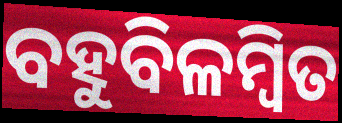
ବହୁବିଳମ୍ବିତ